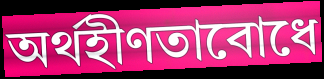
অর্থহীণতাবোধে